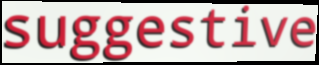
suggestive